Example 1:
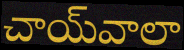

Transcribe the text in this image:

చాయ్‌వాలా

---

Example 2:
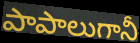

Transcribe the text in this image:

పాపాలుగానీ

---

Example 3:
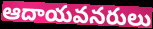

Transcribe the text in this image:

ఆదాయవనరులు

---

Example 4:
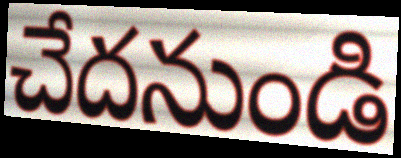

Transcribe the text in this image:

చేదనుండి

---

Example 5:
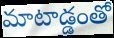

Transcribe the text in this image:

మాటాడ్డంతో